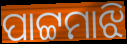
ପାଟ୍ଟମାଝି